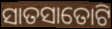
ସାତସାତୋଟି